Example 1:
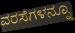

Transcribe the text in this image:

ವರಸೆಗಳನ್ನೂ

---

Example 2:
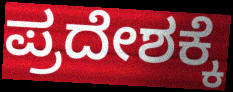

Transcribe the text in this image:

ಪ್ರದೇಶಕ್ಕೆ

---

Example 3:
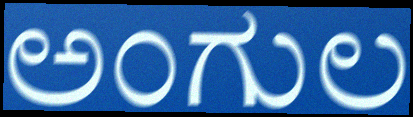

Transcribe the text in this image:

ಅಂಗುಲ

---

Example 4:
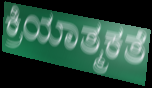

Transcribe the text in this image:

ಕ್ರಿಯಾತ್ಮಕತೆ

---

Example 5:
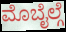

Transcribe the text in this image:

ಮೊಬೈಲ್ಗೆ